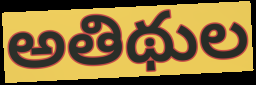
అతిథుల